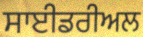
ਸਾਈਡਰੀਅਲ